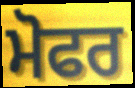
ਮੋਫਰ